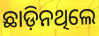
ଛାଡ଼ିନଥିଲେ